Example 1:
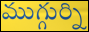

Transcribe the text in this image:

ముగ్గుర్ని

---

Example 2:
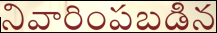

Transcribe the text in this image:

నివారింపబడిన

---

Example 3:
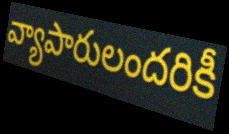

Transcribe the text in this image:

వ్యాపారులందరికీ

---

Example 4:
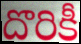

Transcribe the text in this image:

దొరికీ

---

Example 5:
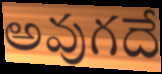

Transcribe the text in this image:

అవుగదే